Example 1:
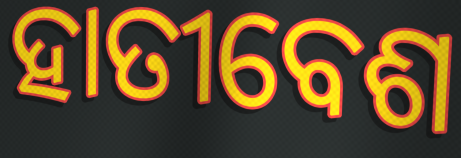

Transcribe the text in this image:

ହାତୀବେଶ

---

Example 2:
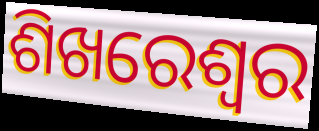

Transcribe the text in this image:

ଶିଖରେଶ୍ୱର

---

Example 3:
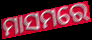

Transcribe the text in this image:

ମାସମରେ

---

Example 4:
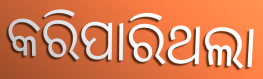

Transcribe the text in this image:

କରିପାରିଥଲା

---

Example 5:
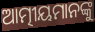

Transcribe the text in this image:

ଆତ୍ମୀୟମାନଙ୍କୁ